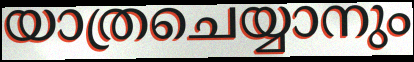
യാത്രചെയ്യാനും